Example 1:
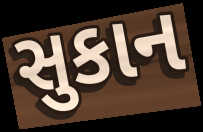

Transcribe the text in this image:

સુકાન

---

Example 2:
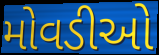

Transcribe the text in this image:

મોવડીઓ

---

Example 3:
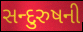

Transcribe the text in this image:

સન્દુરુષની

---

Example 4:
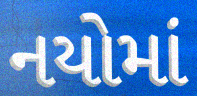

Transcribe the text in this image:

નયોમાં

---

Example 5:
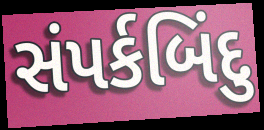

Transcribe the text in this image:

સંપર્કબિંદુ